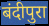
बंदीपुरा